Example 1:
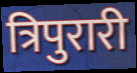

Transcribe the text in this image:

त्रिपुरारी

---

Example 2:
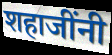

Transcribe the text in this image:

शहाजींनी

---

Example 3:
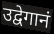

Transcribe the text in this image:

उद्वेगानं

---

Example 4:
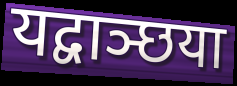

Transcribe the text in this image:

यद्वाञ्छया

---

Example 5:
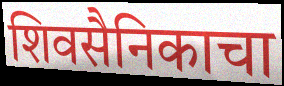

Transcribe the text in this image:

शिवसैनिकाचा